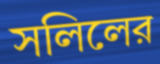
সলিলের